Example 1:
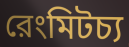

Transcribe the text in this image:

রেংমিটচ্য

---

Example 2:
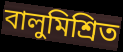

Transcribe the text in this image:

বালুমিশ্রিত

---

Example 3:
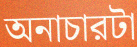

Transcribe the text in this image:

অনাচারটা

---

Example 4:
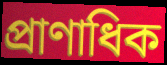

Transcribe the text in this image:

প্রাণাধিক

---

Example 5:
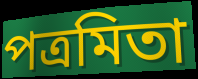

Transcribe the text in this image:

পত্রমিতা